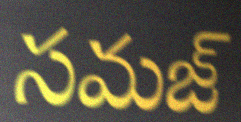
సమజ్